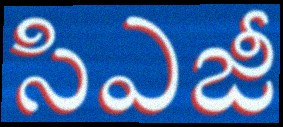
సిఎజీ